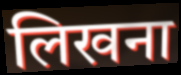
लिखना